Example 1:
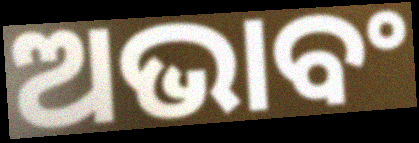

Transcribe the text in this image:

ଅଭାବଂ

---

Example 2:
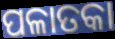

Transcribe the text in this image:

ପଳାତକା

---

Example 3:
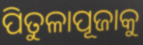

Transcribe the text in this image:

ପିତୁଳାପୂଜାକୁ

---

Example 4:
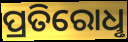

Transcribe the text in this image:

ପ୍ରତିରୋଧୢ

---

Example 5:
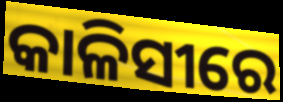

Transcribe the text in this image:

କାଳିସୀରେ